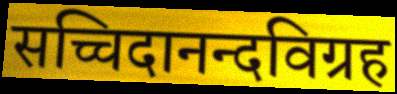
सच्चिदानन्दविग्रह